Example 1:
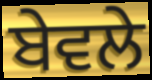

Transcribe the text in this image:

ਬੇਵਲੇ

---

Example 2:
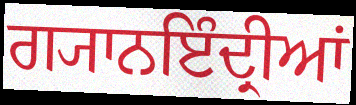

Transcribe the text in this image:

ਗ੍ਯਾਨਇੰਦ੍ਰੀਆਂ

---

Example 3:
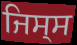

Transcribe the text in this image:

ਜਿਸ੍ਸ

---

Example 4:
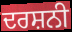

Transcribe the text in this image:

ਦਰਸ਼ਨੀ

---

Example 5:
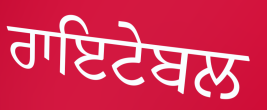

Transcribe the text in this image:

ਰਾਇਟੇਬਲ